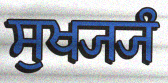
ਸੁਖ੍ਯ੍ਯੰ